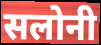
सलोनी